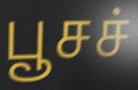
பூசச்